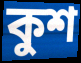
কুশ